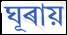
ঘূৰায়